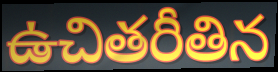
ఉచితరీతిన